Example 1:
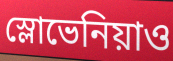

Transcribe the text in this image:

স্লোভেনিয়াও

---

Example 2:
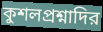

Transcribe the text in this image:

কুশলপ্রশ্নাদির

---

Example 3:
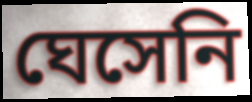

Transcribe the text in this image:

ঘেসেনি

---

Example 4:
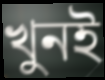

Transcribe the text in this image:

খুনই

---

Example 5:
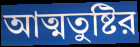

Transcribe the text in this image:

আত্মতুষ্টির